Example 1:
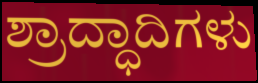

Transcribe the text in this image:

ಶ್ರಾದ್ಧಾದಿಗಳು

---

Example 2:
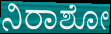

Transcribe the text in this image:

ನಿರಾಶೋ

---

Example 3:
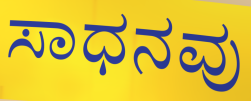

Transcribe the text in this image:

ಸಾಧನವು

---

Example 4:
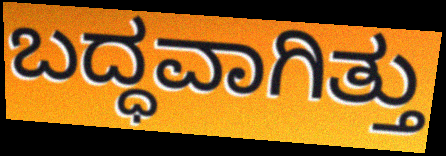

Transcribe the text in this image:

ಬದ್ಧವಾಗಿತ್ತು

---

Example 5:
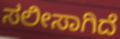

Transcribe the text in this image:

ಸಲೀಸಾಗಿದೆ